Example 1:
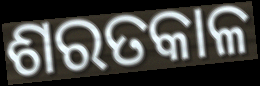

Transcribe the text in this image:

ଶରତକାଳ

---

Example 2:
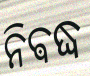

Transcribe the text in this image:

ନିଵଦ୍ଧ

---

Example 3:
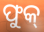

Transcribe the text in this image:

ଫୁକ୍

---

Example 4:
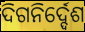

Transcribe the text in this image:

ଦିଗନିର୍ଦ୍ଦେଶ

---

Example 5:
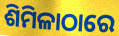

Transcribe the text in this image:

ଶିମିଳାଠାରେ